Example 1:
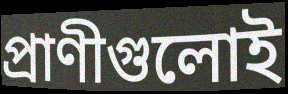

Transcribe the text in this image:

প্রাণীগুলোই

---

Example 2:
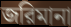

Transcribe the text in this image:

জরিমানা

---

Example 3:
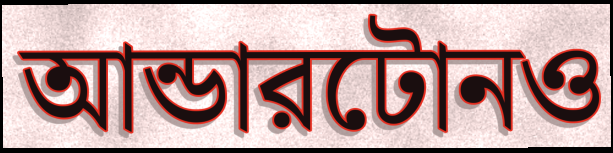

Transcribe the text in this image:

আন্ডারটোনও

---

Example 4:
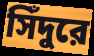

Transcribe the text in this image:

সিঁদুরে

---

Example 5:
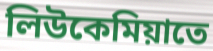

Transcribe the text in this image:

লিউকেমিয়াতে